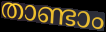
താണ്ടാം